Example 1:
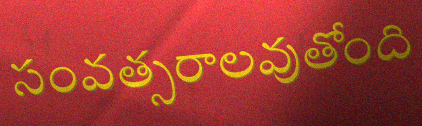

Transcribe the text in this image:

సంవత్సరాలవుతోంది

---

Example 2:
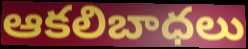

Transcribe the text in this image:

ఆకలిబాధలు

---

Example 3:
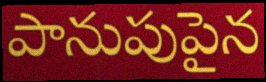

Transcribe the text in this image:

పానుపుపైన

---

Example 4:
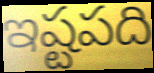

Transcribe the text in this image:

ఇష్టపది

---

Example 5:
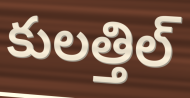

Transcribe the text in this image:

కులత్తిల్